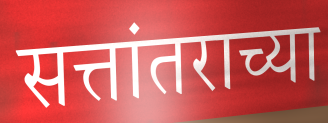
सत्तांतराच्या